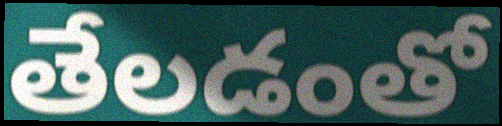
తేలడంతో